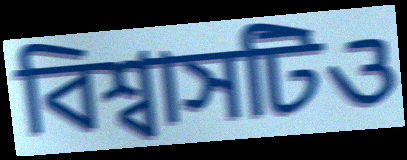
বিশ্বাসটিও